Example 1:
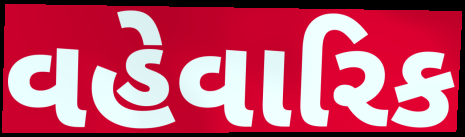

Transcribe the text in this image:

વહેવારિક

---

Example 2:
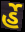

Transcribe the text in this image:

ર્હે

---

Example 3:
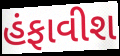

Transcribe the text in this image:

હંફાવીશ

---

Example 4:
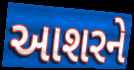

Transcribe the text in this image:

આશરને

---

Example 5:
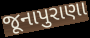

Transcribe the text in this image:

જૂનાપુરાણા